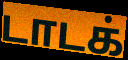
டாடக்